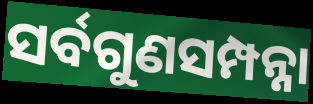
ସର୍ବଗୁଣସମ୍ପନ୍ନା